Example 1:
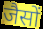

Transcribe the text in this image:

जैसों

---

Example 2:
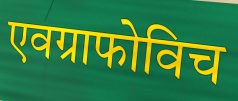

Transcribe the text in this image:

एवग्राफोविच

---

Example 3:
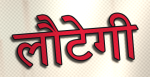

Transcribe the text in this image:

लौटेगी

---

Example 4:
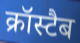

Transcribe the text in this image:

क्रॉस्टैब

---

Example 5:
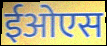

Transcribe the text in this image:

ईओएस